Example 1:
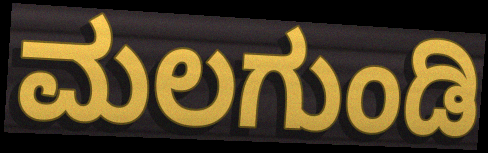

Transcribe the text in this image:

ಮಲಗುಂಡಿ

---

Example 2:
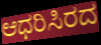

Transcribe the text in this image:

ಆಧರಿಸಿರದ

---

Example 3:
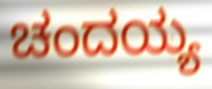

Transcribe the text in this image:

ಚಂದಯ್ಯ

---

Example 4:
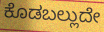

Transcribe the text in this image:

ಕೊಡಬಲ್ಲುದೇ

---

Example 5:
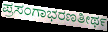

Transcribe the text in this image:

ಪ್ರಸಂಗಾಭರಣತೀರ್ಥ